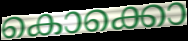
കൊക്കൊ